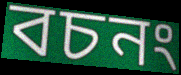
বচনং